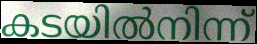
കടയിൽനിന്ന്